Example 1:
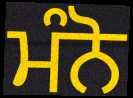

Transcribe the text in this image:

ਮੰਨੋ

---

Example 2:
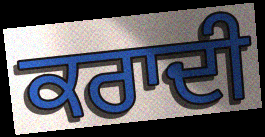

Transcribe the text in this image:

ਕਰਾਦੀ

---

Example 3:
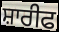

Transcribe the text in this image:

ਸ਼ਾਰੀਫ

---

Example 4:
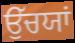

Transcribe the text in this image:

ਉੱਚਯਾਂ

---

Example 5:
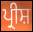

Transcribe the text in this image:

ਪ੍ਰੀਸ਼